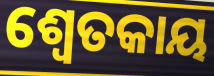
ଶ୍ବେତକାୟ